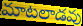
మాటలాడవు